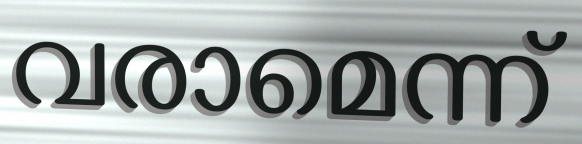
വരാമെന്ന്